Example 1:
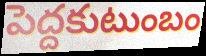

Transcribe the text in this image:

పెద్దకుటుంబం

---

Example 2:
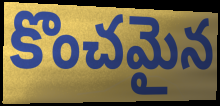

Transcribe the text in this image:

కొంచమైన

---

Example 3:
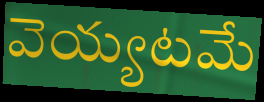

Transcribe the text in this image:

వెయ్యటమే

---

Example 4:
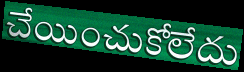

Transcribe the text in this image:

చేయించుకోలేదు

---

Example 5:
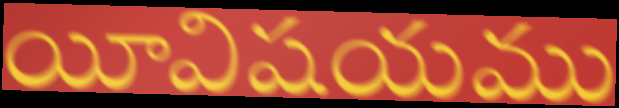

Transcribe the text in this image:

యీవిషయము